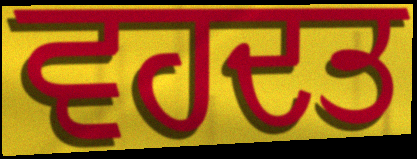
ਵਹਦਤ